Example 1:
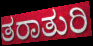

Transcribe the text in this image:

ತರಾತುರಿ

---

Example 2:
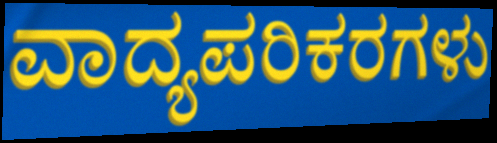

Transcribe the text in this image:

ವಾದ್ಯಪರಿಕರಗಳು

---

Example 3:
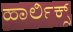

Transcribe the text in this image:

ಹಾರ್ಲಿಕ್ಸ್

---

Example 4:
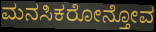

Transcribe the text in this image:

ಮನಸಿಕರೋನ್ತೋವ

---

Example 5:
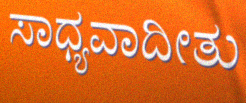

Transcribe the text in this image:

ಸಾಧ್ಯವಾದೀತು